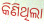
କିଣିଥିଲା